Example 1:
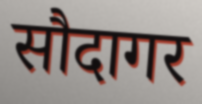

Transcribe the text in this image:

सौदागर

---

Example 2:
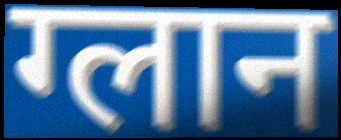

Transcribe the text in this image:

ग्लान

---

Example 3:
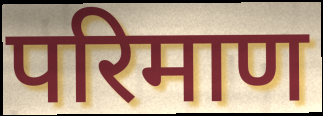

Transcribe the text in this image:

परिमाण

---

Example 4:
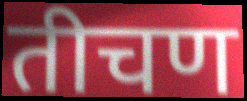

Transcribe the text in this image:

तीचण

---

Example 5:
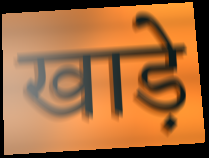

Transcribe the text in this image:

खाड़े